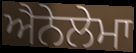
ਐਨੇਲੇਮਾ